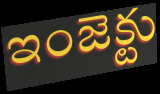
ఇంజెక్టు